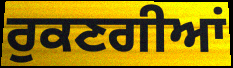
ਰੁਕਣਗੀਆਂ